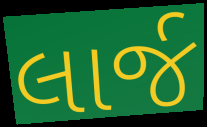
લાર્જ